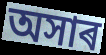
অসাৰ